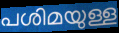
പശിമയുള്ള